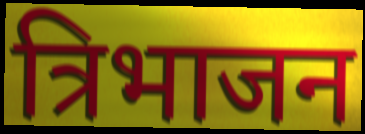
त्रिभाजन